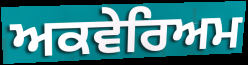
ਅਕਵੇਰਿਅਮ